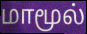
மாமூல்